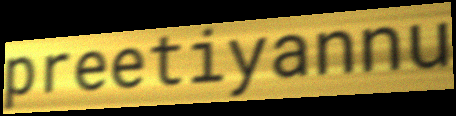
preetiyannu